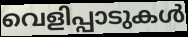
വെളിപ്പാടുകൾ